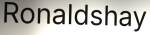
Ronaldshay